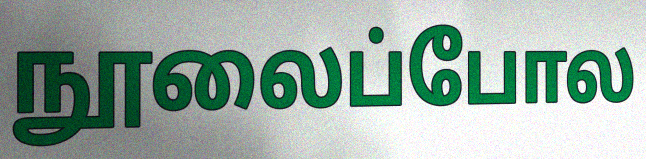
நூலைப்போல